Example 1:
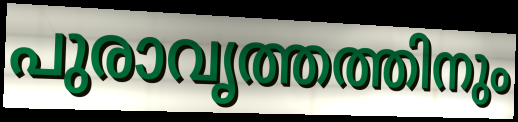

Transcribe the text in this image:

പുരാവൃത്തത്തിനും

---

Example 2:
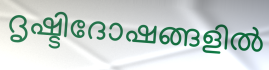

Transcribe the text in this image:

ദൃഷ്ടിദോഷങ്ങളിൽ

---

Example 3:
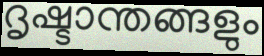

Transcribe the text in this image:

ദൃഷ്ടാന്തങ്ങളും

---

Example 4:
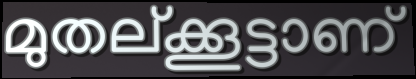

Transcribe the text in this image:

മുതല്ക്കൂട്ടാണ്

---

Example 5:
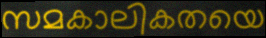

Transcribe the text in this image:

സമകാലികതയെ